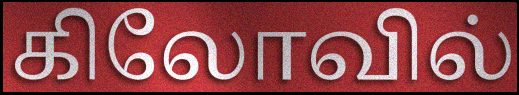
கிலோவில்